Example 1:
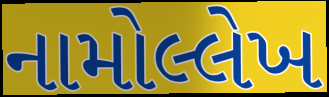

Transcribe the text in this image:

નામોલ્લેખ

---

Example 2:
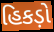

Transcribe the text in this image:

હિકડ઼ો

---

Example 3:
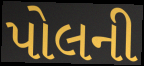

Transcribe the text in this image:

પોલની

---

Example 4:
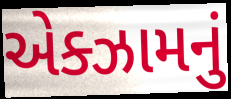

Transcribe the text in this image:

એક્ઝામનું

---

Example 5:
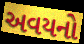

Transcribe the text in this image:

અવયનો